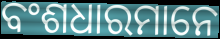
ବଂଶଧାରମାନେ